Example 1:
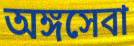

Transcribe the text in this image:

অঙ্গসেবা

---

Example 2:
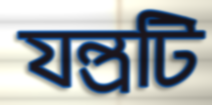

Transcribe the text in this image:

যন্ত্রটি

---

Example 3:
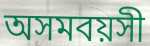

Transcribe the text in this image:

অসমবয়সী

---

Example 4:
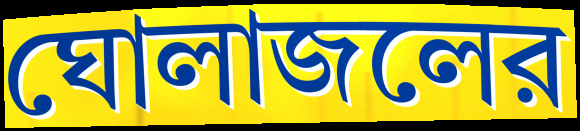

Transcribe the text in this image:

ঘোলাজলের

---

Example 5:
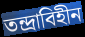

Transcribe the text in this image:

তন্দ্রাবিহীন